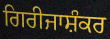
ਗਿਰੀਜਾਸ਼ੰਕਰ